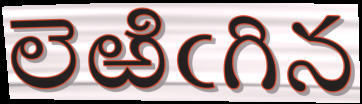
లెఱిఁగిన